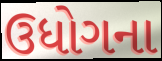
ઉધોગના